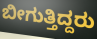
ಬೀಗುತ್ತಿದ್ದರು